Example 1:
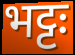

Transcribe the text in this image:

भट्टः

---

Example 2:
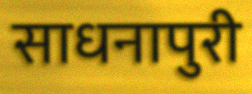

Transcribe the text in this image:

साधनापुरी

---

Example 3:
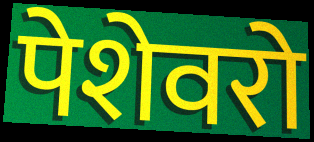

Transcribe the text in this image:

पेशेवरो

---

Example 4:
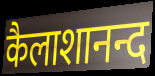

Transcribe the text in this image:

कैलाशानन्द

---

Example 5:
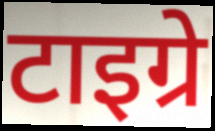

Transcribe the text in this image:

टाइग्रे